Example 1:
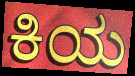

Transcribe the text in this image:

ಕಿಯ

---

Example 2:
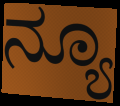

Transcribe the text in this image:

ನ್ಯೂ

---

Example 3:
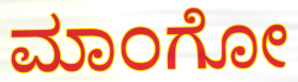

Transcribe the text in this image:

ಮಾಂಗೋ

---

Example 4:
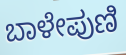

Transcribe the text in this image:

ಬಾಳೇಪುಣಿ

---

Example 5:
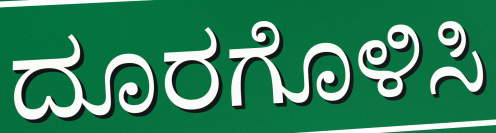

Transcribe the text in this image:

ದೂರಗೊಳಿಸಿ